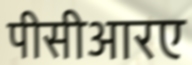
पीसीआरए